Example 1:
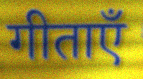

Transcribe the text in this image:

गीताएँ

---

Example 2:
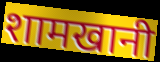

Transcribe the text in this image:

शामखानी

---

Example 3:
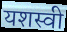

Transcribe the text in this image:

यशस्वी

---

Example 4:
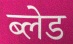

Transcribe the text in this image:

ब्लेड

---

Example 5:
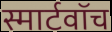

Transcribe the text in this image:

स्मार्टवॉच